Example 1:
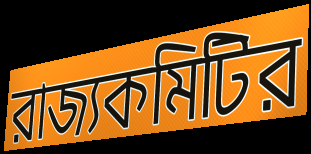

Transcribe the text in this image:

রাজ্যকমিটির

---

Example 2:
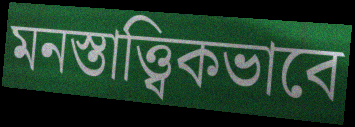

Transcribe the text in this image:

মনস্তাত্ত্বিকভাবে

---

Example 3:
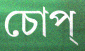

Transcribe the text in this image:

চোপ্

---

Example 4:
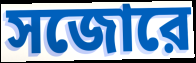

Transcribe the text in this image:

সজোরে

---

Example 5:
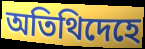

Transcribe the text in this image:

অতিথিদেহে